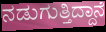
ನಡುಗುತ್ತಿದ್ದಾನೆ